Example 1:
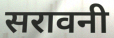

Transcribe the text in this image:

सरावनी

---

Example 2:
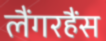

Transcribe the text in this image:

लैंगरहैंस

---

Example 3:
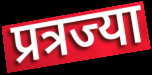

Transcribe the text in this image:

प्रत्रज्या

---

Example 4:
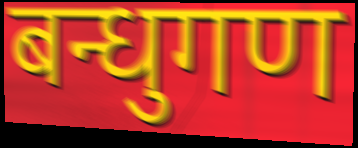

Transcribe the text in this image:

बन्धुगण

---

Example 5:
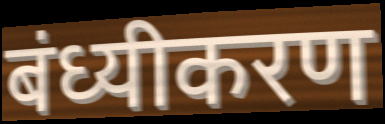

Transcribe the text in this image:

बंध्यीकरण